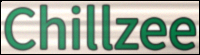
Chillzee